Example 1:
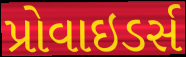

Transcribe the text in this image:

પ્રોવાઇડર્સ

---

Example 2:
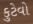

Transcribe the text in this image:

કુટેવો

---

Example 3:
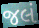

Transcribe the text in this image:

જલં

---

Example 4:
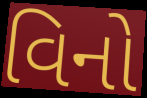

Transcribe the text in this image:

વિનો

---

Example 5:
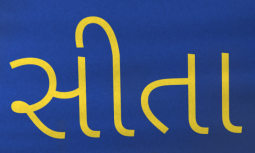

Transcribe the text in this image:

સીતા